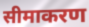
सीमाकरण